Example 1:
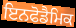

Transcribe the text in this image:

ਇਨਫੋਡੈਮਿਕ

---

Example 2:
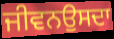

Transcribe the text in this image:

ਜੀਵਨਉਸਦਾ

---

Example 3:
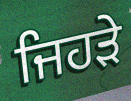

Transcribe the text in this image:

ਜਿਹਡ਼ੇ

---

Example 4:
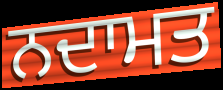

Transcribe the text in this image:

ਨਦਾਮਤ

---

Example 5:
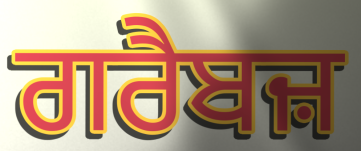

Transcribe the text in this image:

ਗਰੈਬਜ਼